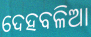
ଦେହବଳିଆ